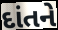
દાંતને